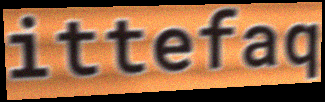
ittefaq